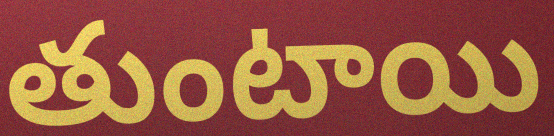
తుంటాయి